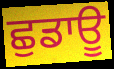
ਛੁਡਾਊ